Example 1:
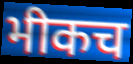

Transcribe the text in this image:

भीकच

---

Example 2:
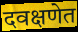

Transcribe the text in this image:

दवक्षणेत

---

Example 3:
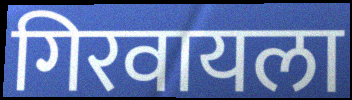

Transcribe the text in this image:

गिरवायला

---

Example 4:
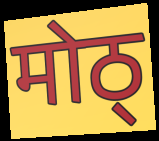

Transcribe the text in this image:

मोठ्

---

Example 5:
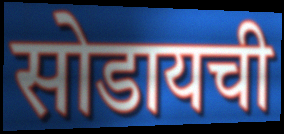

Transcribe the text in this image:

सोडायची